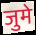
जुमे